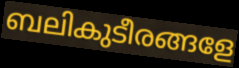
ബലികുടീരങ്ങളേ